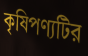
কৃষিপণ্যটির